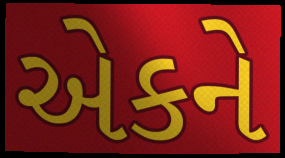
એકને